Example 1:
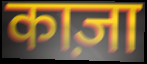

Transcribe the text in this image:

काज़ा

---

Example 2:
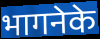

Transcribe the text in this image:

भागनेके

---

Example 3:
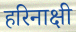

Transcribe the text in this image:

हरिनाक्षी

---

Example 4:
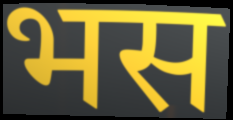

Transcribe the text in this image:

भस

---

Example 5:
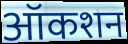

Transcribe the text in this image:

ऑकशन